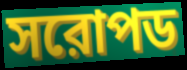
সরোপড